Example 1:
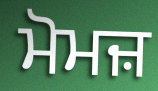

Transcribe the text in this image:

ਮੋਮਜ਼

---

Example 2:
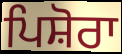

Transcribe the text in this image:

ਪਿਸ਼ੋਰਾ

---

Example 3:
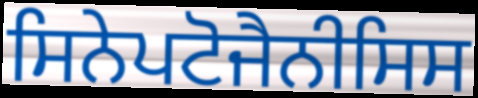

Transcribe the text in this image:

ਸਿਨੇਪਟੋਜੈਨੀਸਿਸ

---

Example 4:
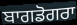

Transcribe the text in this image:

ਬਾਗਡੋਗਰਾ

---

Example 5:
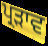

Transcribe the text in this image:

ਪ੍ਰੜਾਵ